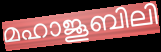
മഹാജൂബിലി